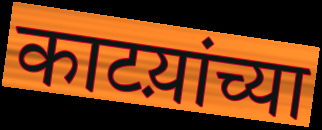
काटय़ांच्या